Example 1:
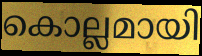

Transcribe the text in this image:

കൊല്ലമായി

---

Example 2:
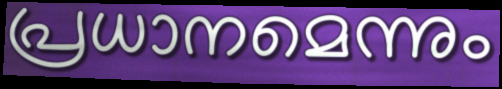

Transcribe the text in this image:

പ്രധാനമെന്നും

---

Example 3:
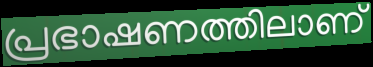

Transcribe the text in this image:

പ്രഭാഷണത്തിലാണ്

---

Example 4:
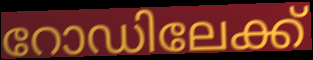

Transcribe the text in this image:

റോഡിലേക്ക്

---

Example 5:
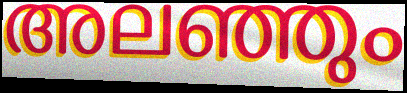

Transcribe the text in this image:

അലഞ്ഞും